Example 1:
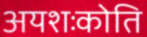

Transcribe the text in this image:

अयशःकोति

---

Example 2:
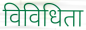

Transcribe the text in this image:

विविधिता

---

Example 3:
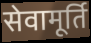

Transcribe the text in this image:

सेवामूर्ति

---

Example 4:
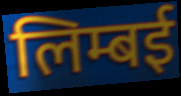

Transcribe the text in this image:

लिम्बई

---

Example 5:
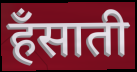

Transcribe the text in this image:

हँसाती